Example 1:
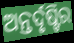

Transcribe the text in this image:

ଅନ୍ତର୍ଦୃଷ୍ଟିର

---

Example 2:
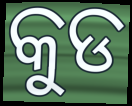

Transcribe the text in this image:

କୁଡ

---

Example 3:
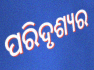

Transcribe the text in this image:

ପରିଦୃଶ୍ୟର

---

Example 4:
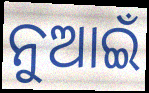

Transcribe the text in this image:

ନୁଆଇଁ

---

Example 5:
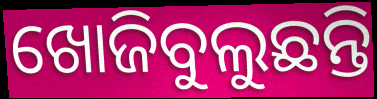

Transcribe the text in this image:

ଖୋଜିବୁଲୁଛନ୍ତି